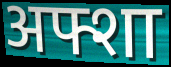
अफ्शा